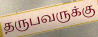
தருபவருக்கு